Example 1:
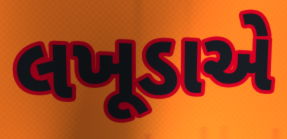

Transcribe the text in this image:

લખૂડાએ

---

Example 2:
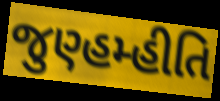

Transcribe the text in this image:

જુણ્હમ્હીતિ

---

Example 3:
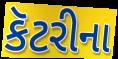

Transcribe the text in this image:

કૅટરીના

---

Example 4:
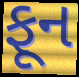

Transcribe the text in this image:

ફૂન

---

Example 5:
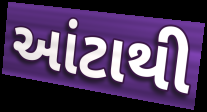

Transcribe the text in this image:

આંટાથી